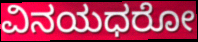
ವಿನಯಧರೋ